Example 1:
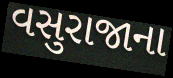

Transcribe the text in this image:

વસુરાજાના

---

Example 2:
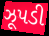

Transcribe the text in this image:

ઝૂપડી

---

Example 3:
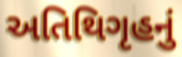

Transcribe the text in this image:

અતિથિગૃહનું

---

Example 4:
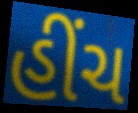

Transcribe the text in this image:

હીંચ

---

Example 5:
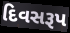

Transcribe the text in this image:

દિવસરૂપ